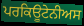
ਪਰਕਿਊਟੇਨੀਅਸ